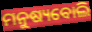
ମନୁଷ୍ୟବୋଲି